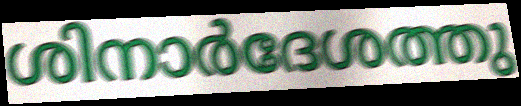
ശിനാർദേശത്തു